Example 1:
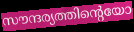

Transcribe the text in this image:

സൗന്ദര്യത്തിന്റെയോ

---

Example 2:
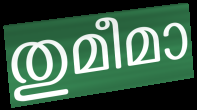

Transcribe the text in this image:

തുമീമാ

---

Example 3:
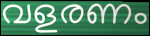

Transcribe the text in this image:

വളരണം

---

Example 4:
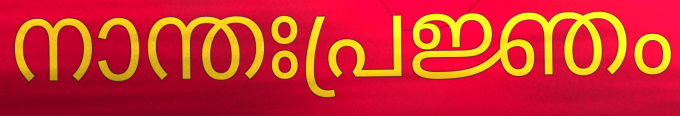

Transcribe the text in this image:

നാന്തഃപ്രജ്ഞം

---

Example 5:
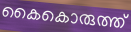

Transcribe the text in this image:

കൈകൊരുത്ത്